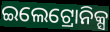
ଇଲେଟ୍ରୋନିକ୍ସ